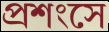
প্রশংসে